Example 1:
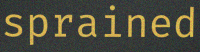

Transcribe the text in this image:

sprained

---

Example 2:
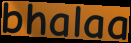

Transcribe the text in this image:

bhalaa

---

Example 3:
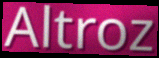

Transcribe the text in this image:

Altroz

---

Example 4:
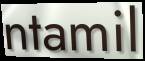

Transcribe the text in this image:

ntamil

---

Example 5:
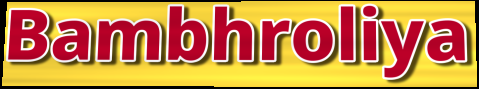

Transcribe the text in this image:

Bambhroliya